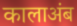
कालाअंब